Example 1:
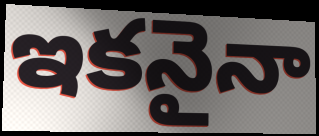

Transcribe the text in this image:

ఇకనైనా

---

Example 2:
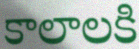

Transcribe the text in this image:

కాలాలకి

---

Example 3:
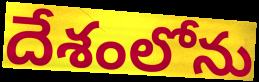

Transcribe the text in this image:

దేశంలోను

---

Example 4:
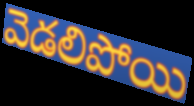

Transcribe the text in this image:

వెడలిపోయి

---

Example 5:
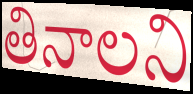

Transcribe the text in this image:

తినాలని